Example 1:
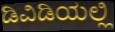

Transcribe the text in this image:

ಡಿವಿಡಿಯಲ್ಲಿ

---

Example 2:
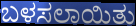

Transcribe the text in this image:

ಬಳಸಲಾಯಿತು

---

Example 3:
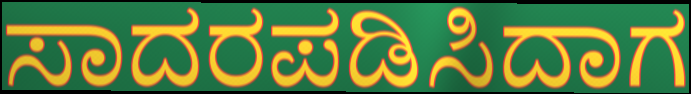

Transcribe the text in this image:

ಸಾದರಪಡಿಸಿದಾಗ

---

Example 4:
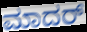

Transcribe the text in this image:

ಮಾದರ್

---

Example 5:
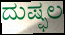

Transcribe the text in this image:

ದುಷ್ಫಲ